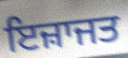
ਇਜ਼ਾਜਤ